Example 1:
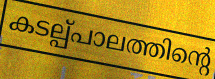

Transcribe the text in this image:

കടല്പ്പാലത്തിന്റെ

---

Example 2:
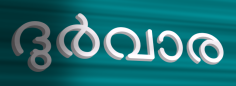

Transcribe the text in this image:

ദുർവാര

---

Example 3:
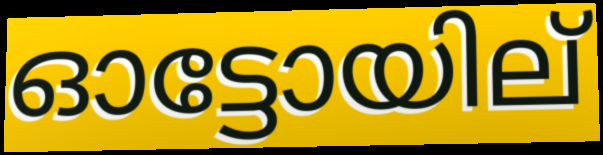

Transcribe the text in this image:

ഓട്ടോയില്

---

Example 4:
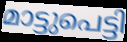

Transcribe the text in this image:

മാട്ടുപെട്ടി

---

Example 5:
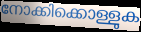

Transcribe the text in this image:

നോക്കിക്കൊള്ളുക